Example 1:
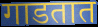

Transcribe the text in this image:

गाडतात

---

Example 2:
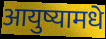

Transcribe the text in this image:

आयुष्यामधे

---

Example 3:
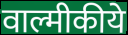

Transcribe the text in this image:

वाल्मीकीये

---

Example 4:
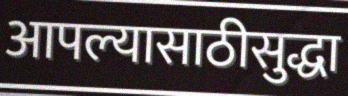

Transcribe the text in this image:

आपल्यासाठीसुद्धा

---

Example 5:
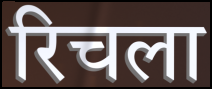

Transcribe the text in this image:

रिचला